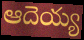
ఆదెయ్య